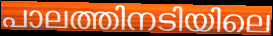
പാലത്തിനടിയിലെ